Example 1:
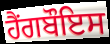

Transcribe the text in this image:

ਹੈਂਗਬੌਇਸ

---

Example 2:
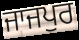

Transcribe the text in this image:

ਜਾਜਪੁਰ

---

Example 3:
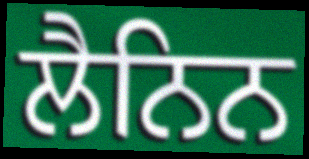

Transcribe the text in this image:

ਲੈਨਿਨ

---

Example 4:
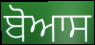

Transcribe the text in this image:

ਬੋਆਸ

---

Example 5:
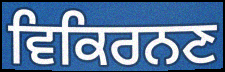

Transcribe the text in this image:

ਵਿਕਿਰਨਣ